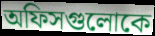
অফিসগুলোকে